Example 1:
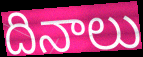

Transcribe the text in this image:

దినాలు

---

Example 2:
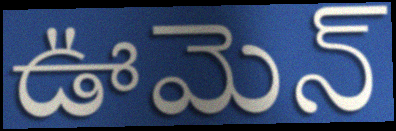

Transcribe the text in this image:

ఊమెన్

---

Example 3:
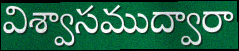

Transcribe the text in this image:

విశ్వాసముద్వారా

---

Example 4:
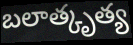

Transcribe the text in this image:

బలాత్కృత్య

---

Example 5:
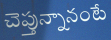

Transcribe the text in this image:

చెప్తున్నానంటే